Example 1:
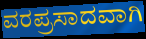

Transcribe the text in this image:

ವರಪ್ರಸಾದವಾಗಿ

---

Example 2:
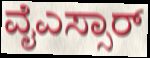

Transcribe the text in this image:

ವೈಎಸ್ಸಾರ್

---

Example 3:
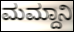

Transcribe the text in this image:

ಮಮ್ದಾನಿ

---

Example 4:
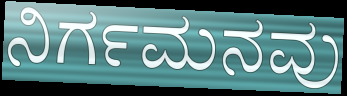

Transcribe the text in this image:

ನಿರ್ಗಮನವು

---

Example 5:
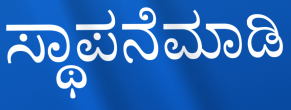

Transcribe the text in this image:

ಸ್ಥಾಪನೆಮಾಡಿ